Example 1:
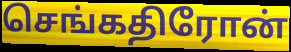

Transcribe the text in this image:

செங்கதிரோன்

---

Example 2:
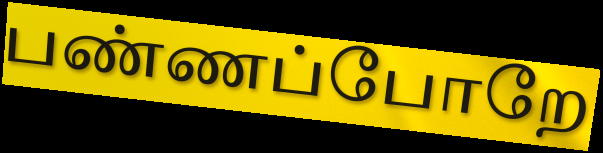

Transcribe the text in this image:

பண்ணப்போறே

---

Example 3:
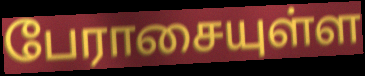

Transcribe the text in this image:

பேராசையுள்ள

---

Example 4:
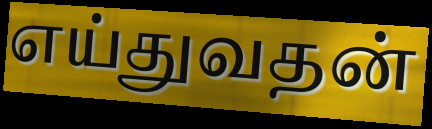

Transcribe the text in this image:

எய்துவதன்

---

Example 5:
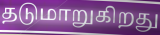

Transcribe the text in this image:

தடுமாறுகிறது